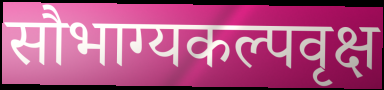
सौभाग्यकल्पवृक्ष